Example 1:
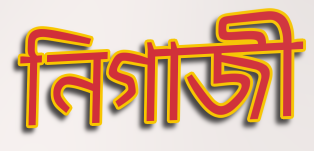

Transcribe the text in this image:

নিগাজী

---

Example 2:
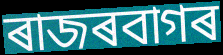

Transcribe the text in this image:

ৰাজৰবাগৰ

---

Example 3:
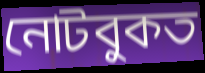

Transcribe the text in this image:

নোটবুকত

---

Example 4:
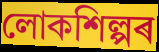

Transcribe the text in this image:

লোকশিল্পৰ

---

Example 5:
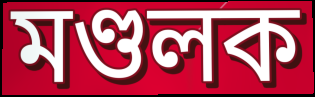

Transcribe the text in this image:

মণ্ডলক